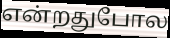
என்றதுபோல